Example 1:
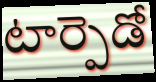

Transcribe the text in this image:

టార్పెడో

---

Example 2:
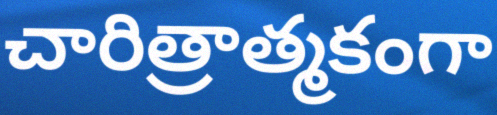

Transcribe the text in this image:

చారిత్రాత్మకంగా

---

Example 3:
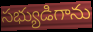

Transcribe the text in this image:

సభ్యుడిగాను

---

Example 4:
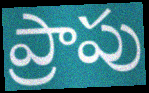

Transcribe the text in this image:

ప్రాపు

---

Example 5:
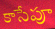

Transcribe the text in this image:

కాసేపూ